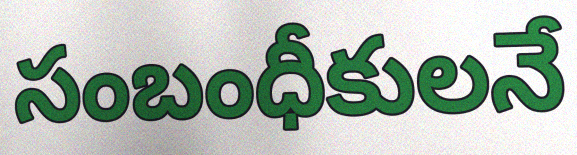
సంబంధీకులనే